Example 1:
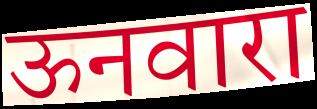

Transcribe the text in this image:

ऊनवारा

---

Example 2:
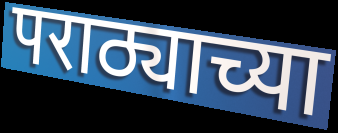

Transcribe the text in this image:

पराठ्याच्या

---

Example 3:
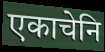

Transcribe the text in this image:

एकाचेनि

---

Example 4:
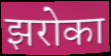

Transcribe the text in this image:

झरोका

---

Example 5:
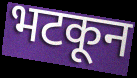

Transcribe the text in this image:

भटकून